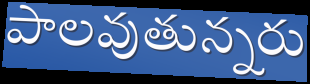
పాలవుతున్నరు